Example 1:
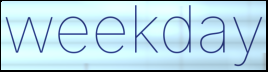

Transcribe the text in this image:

weekday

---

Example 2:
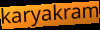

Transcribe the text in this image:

karyakram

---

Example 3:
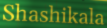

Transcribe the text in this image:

Shashikala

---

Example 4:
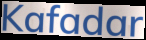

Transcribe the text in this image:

Kafadar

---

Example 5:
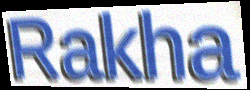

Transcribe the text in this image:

Rakha